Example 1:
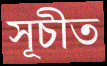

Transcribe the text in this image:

সূচীত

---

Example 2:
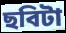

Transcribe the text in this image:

ছবিটা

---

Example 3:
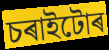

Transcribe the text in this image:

চৰাইটোৰ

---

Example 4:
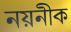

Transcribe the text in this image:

নয়নীক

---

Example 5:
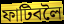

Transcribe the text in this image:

ফাটিবলৈ